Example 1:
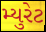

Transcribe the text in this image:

મ્યુરેટ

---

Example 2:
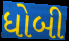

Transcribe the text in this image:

ધોબી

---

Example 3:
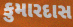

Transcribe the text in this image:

કુમારદાસ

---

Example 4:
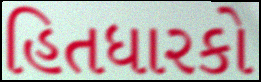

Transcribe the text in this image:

હિતધારકો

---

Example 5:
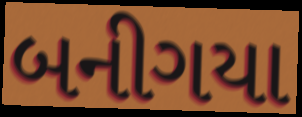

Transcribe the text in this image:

બનીગયા